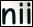
nii